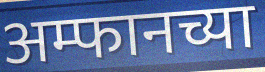
अम्फानच्या